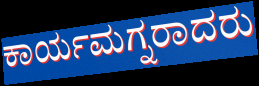
ಕಾರ್ಯಮಗ್ನರಾದರು